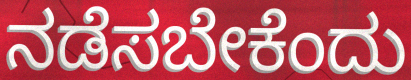
ನಡೆಸಬೇಕೆಂದು